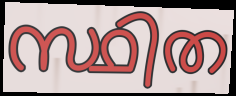
സ്ഥിത